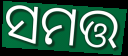
ସମତ୍ତ